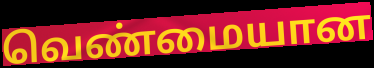
வெண்மையான